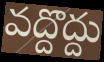
వద్దొద్దు